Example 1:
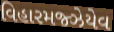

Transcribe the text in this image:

વિહારમજ્ઝેયેવ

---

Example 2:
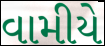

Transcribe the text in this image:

વામીયે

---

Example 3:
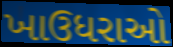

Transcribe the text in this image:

ખાઉધરાઓ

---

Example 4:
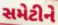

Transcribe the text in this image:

સમેટીને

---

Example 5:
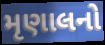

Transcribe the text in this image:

મૃણાલનો